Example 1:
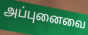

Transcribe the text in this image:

அப்புனைவை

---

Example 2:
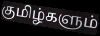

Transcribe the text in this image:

குமிழ்களும்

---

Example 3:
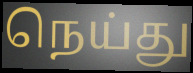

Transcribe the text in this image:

நெய்து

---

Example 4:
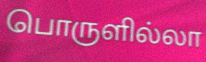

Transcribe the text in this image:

பொருளில்லா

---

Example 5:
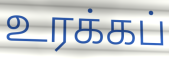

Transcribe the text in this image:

உரக்கப்